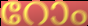
റോം